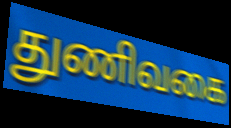
துணிவகை